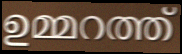
ഉമ്മറത്ത്